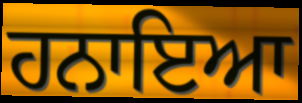
ਹਨਾਇਆ